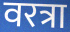
वरत्रा